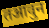
तआवुन